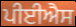
ਪੀਈਐਸ